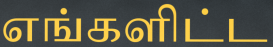
எங்களிட்ட